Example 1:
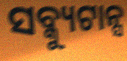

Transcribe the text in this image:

ସବ୍କ୍ୟୁଟାନ୍ସ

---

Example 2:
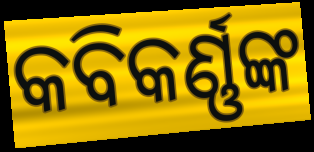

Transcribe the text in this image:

କବିକର୍ଣ୍ଣଙ୍କ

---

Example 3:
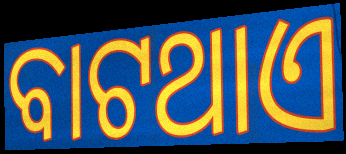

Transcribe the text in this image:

ବାଟଥାଏ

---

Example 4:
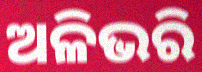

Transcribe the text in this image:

ଅଳିଭରି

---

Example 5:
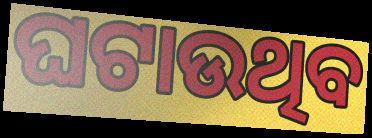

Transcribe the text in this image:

ଘଟାଉଥିବ